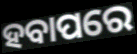
ହବାପରେ